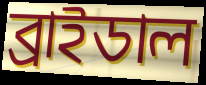
ব্রাইডাল